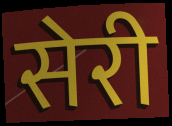
सेरी